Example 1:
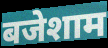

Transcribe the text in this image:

बजेशाम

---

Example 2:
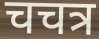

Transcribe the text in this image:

चचत्र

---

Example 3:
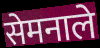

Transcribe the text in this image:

सेमनाले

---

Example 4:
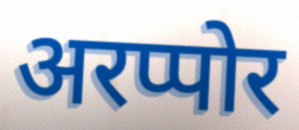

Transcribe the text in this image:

अरप्पोर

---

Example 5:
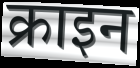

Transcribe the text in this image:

क्राइन